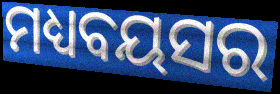
ମଧ୍ୟବୟସର